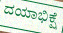
ದಯಾಭಿಕ್ಷೆ